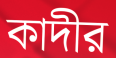
কাদীর